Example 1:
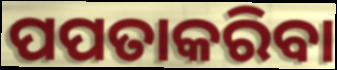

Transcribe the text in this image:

ପପତାକରିବା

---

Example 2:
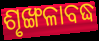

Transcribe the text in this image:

ଶୃଙ୍ଖଳାବଦ୍ଧ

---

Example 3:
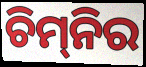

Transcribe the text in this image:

ଚିମ୍‌ନିର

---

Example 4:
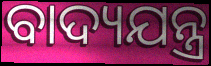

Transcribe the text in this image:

ବାଦ୍ୟଯନ୍ତ୍ର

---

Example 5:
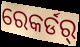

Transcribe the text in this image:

ରେକର୍ଡର୍